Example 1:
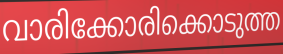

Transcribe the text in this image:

വാരിക്കോരിക്കൊടുത്ത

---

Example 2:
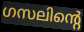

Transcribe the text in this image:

ഗസലിന്റെ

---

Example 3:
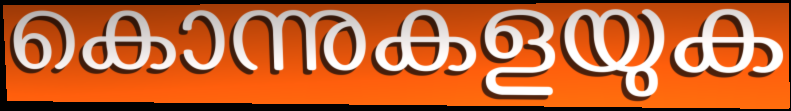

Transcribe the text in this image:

കൊന്നുകളയുക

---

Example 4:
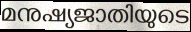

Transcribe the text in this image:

മനുഷ്യജാതിയുടെ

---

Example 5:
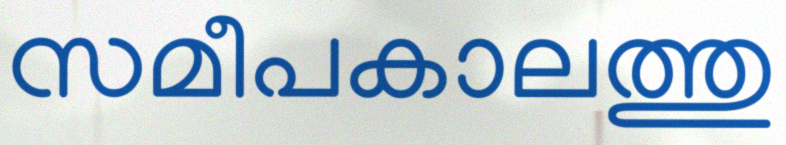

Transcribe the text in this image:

സമീപകാലത്തു